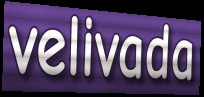
velivada